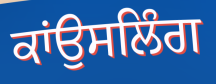
ਕਾਂਉਸਲਿੰਗ